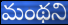
మంథని